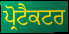
ਪ੍ਰੋਟੈਕਟਰ